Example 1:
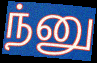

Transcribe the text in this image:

ந்னு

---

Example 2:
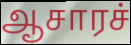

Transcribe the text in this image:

ஆசாரச்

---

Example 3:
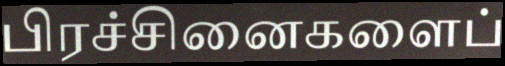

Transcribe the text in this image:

பிரச்சினைகளைப்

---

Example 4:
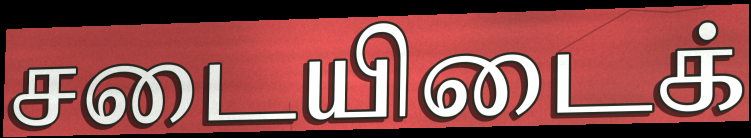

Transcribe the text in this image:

சடையிடைக்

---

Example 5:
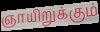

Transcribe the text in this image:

ஞாயிறுக்கும்